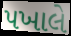
પખાલે